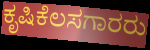
ಕೃಷಿಕೆಲಸಗಾರರು